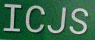
ICJS